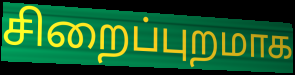
சிறைப்புறமாக